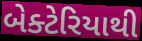
બેક્ટેરિયાથી